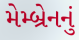
મેમ્બ્રેનનું